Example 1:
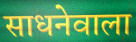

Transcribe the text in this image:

साधनेवाला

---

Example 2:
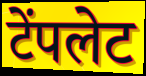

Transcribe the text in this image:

टेंपलेट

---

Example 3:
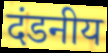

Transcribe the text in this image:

दंडनीय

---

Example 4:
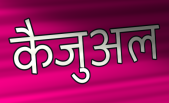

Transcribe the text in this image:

कैजुअल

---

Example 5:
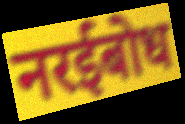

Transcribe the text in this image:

नरईबोध